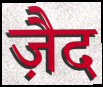
ज़ैद